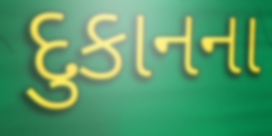
દુકાનના